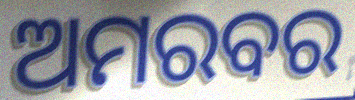
ଅମରବର